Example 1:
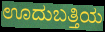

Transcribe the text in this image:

ಊದುಬತ್ತಿಯ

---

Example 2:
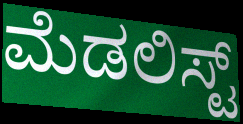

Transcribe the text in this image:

ಮೆಡಲಿಸ್ಟ್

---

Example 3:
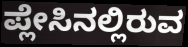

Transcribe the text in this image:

ಪ್ಲೇಸಿನಲ್ಲಿರುವ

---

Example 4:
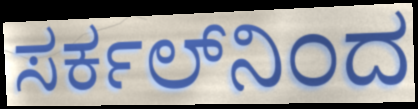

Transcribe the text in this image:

ಸರ್ಕಲ್‌ನಿಂದ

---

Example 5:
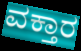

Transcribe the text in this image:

ವಕ್ತಾರ